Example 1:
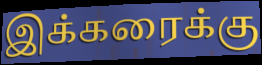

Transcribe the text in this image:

இக்கரைக்கு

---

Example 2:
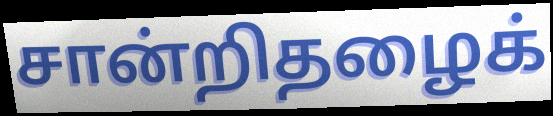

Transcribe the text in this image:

சான்றிதழைக்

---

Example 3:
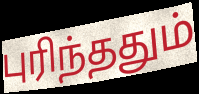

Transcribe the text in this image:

புரிந்ததும்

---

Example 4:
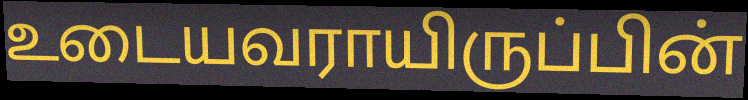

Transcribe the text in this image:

உடையவராயிருப்பின்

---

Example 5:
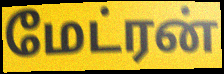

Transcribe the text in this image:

மேட்ரன்